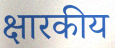
क्षारकीय